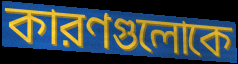
কারণগুলোকে